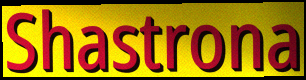
Shastrona